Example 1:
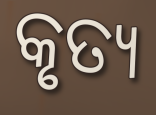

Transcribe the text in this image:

କୃତ୍ଯ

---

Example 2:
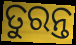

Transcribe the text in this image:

ତୁରନ୍ତ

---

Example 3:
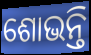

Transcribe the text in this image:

ଶୋଭନ୍ତି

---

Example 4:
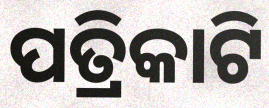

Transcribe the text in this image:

ପତ୍ରିକାଟି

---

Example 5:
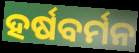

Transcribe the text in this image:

ହର୍ଷବର୍ମନ